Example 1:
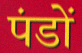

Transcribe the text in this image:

पंडों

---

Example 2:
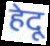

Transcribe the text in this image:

हेदू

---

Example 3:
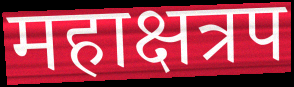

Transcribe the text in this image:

महाक्षत्रप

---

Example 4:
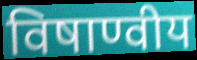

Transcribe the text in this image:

विषाण्वीय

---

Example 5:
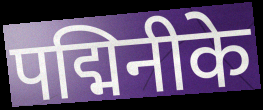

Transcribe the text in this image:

पद्मिनीके